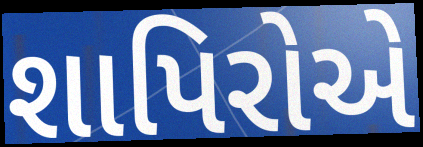
શાપિરોએ